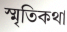
স্মৃতিকথা